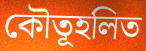
কৌতূহলিত